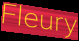
Fleury